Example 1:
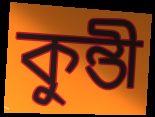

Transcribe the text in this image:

কুন্তী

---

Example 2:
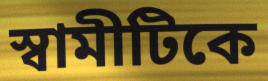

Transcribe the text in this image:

স্বামীটিকে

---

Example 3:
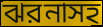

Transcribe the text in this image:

ঝরনাসহ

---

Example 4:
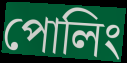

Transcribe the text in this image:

পোলিং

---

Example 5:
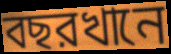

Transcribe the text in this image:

বছরখানে